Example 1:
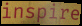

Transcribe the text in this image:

inspire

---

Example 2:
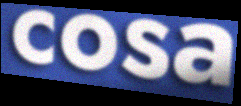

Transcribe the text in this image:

cosa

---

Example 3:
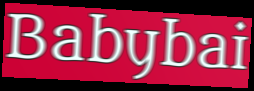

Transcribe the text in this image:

Babybai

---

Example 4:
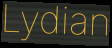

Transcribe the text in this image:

Lydian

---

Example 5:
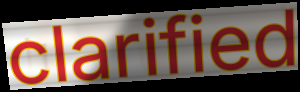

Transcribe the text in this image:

clarified